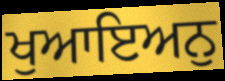
ਖੁਆਇਅਨੁ